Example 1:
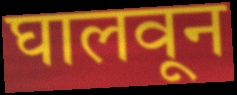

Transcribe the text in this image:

घालवून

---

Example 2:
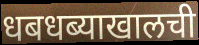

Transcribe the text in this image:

धबधब्याखालची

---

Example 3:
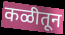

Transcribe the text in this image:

कळीतून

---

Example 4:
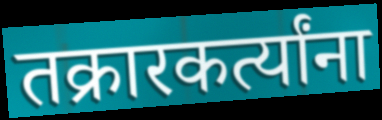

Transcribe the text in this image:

तक्रारकर्त्यांना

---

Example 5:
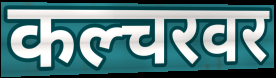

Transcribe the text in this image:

कल्चरवर